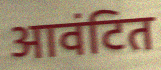
आवंटित